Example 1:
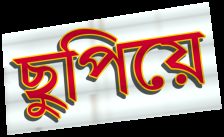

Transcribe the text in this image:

ছুপিয়ে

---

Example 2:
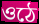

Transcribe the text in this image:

ওঠে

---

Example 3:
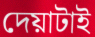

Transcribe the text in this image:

দেয়াটাই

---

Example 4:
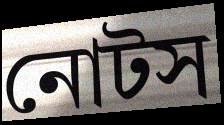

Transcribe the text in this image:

নোটস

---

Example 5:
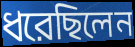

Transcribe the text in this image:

ধরেছিলেন